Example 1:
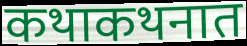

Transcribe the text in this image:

कथाकथनात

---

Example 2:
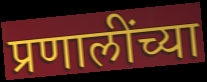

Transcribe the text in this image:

प्रणालींच्या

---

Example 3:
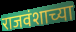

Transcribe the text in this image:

राजवंशाच्या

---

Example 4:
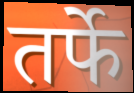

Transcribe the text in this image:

तर्फे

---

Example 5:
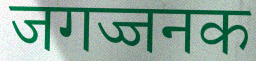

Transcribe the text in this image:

जगज्जनक